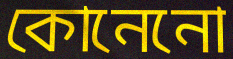
কোনেনো